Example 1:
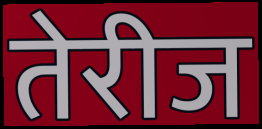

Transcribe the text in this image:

तेरीज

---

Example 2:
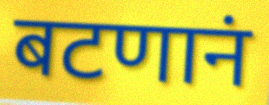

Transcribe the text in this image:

बटणानं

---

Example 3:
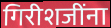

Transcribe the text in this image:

गिरीशजींना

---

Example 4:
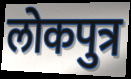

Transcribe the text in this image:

लोकपुत्र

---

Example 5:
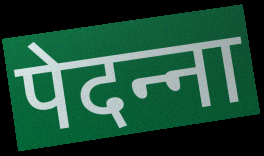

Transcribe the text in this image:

पेदन्ना